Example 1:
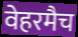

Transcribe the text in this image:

वेहरमैच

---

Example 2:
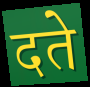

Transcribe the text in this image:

दते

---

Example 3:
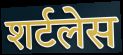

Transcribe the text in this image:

शर्टलेस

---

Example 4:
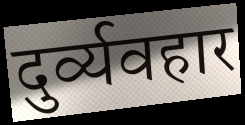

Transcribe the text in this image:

दुर्व्यवहार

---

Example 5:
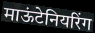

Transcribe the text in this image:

माऊंटेनियरिंग